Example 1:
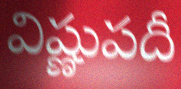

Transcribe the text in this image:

విష్ణుపదీ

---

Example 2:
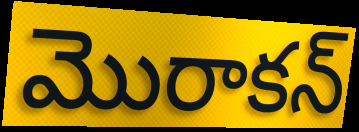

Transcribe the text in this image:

మొరాకన్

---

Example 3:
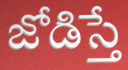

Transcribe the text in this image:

జోడిస్తే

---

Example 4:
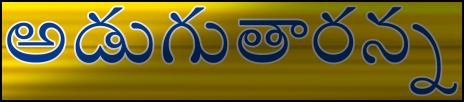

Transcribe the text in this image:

అడుగుతారన్న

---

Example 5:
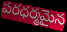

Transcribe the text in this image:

పరధర్మమైన